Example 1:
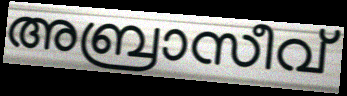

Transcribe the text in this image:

അബ്രാസീവ്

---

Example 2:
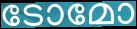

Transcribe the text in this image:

ടോമോ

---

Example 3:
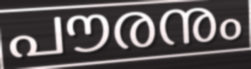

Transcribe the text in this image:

പൗരനും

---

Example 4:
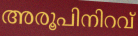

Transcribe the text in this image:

അരൂപിനിറവ്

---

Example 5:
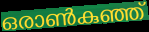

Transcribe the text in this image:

ഒരാൺകുഞ്ഞ്